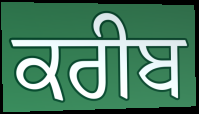
ਕਰੀਬ